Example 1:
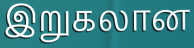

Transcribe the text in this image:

இறுகலான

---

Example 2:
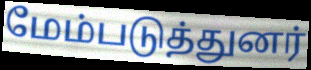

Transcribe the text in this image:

மேம்படுத்துனர்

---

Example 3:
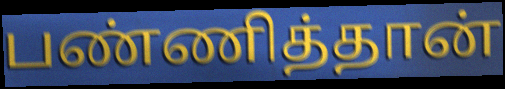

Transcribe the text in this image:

பண்ணித்தான்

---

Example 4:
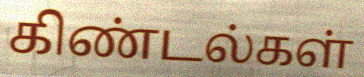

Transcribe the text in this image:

கிண்டல்கள்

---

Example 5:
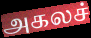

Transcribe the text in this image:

அகலச்